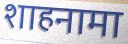
शाहनामा